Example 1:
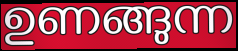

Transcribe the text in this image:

ഉണങ്ങുന്ന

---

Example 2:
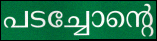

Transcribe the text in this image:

പടച്ചോന്റെ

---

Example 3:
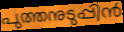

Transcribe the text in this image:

പുത്തനുടുപ്പിൻ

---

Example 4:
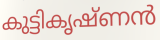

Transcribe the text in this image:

കുട്ടികൃഷ്ണൻ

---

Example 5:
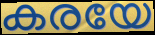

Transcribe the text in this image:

കരയേ